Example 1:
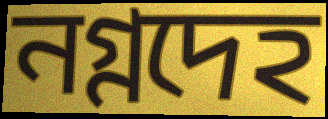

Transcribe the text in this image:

নগ্নদেহ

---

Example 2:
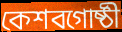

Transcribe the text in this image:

কেশবগোষ্ঠী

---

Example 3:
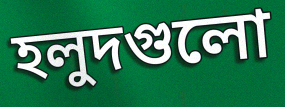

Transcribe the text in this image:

হলুদগুলো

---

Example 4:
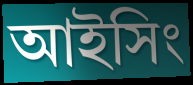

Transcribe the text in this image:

আইসিং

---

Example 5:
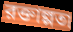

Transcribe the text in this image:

রক্তাল্পতা